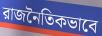
রাজনৈতিকভাবে